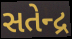
સતેન્દ્ર